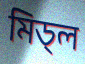
মিড্‌ল